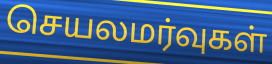
செயலமர்வுகள்